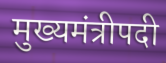
मुख्यमंत्रीपदी